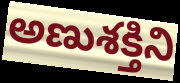
అణుశక్తిని